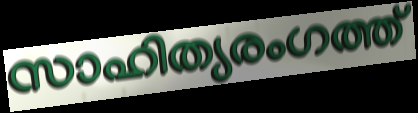
സാഹിത്യരംഗത്ത്